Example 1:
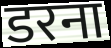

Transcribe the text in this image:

डरना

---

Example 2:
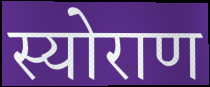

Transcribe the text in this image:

स्योराण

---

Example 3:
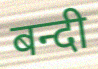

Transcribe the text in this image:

बन्दी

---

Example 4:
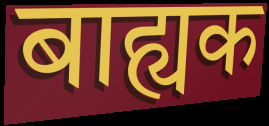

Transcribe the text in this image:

बाह्यक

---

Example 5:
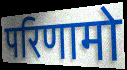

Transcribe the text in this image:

परिणामो